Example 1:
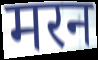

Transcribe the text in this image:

मरन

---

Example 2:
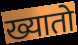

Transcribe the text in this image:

ख्यातो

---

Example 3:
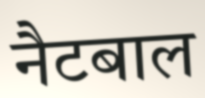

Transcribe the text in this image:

नैटबाल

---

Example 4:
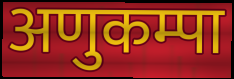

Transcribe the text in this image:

अणुकम्पा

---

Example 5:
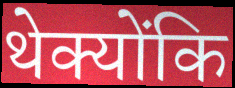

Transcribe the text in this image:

थेक्योंकि